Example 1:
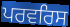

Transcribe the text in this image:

ਪਰਵਰਿਸ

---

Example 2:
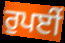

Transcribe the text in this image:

ਰੁਪਈਂ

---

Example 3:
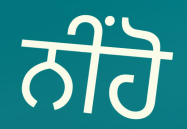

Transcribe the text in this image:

ਨੀਂਹੋ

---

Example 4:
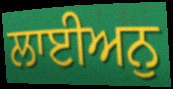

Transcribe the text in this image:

ਲਾਈਅਨੁ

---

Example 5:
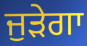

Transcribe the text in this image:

ਜੁੜੇਗਾ